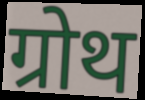
ग्रोथ